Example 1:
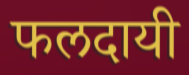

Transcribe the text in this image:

फलदायी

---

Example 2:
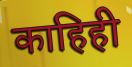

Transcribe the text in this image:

काहिही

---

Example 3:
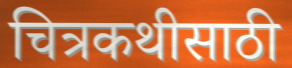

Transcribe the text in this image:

चित्रकथीसाठी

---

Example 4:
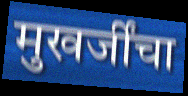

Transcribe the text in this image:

मुखर्जींचा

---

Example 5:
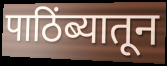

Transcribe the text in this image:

पाठिंब्यातून